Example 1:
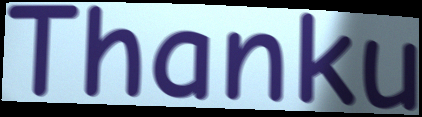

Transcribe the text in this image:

Thanku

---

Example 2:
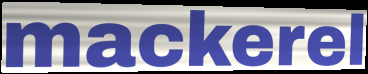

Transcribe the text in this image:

mackerel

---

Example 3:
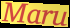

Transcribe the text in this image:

Maru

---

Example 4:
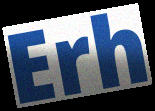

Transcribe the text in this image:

Erh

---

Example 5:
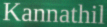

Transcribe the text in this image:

Kannathil